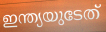
ഇന്ത്യയുടേത്